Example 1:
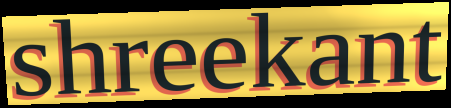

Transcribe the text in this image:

shreekant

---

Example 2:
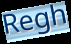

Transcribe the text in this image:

Regh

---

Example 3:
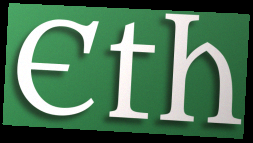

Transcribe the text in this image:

Eth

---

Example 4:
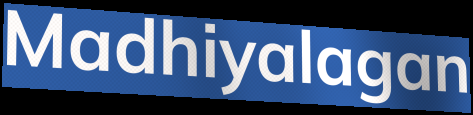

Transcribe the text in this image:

Madhiyalagan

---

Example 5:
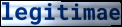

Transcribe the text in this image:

legitimae